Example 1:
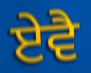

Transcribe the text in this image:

ਏਵੈ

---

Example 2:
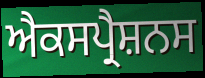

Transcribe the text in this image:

ਐਕਸਪ੍ਰੈਸ਼ਨਸ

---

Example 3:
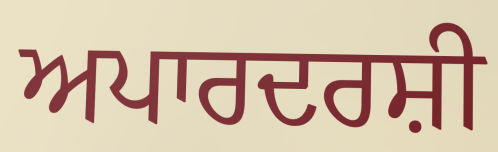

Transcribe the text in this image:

ਅਪਾਰਦਰਸ਼ੀ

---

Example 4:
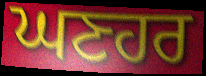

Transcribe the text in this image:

ਘਣਹਰ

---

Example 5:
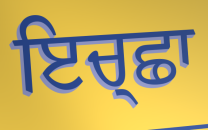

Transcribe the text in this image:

ਇਚ੍ਛਾ